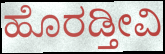
ಹೊರಡ್ತೀವಿ